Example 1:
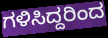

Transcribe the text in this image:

ಗಳಿಸಿದ್ದರಿಂದ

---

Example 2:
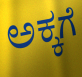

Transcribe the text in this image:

ಅಕ್ಕಗೆ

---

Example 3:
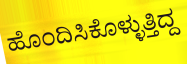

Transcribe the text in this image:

ಹೊಂದಿಸಿಕೊಳ್ಳುತ್ತಿದ್ದ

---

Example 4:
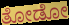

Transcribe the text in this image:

ತೋಡೋ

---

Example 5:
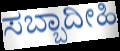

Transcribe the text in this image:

ಸಬ್ಬಾದೀಹಿ